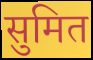
सुमित